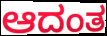
ಆದಂತ